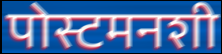
पोस्टमनशी